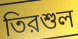
তিরশুল